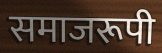
समाजरूपी